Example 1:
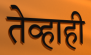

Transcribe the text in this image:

तेव्हाही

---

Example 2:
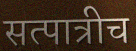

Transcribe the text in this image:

सत्पात्रीच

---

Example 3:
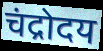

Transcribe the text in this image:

चंद्रोदय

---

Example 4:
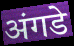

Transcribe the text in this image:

अंगडे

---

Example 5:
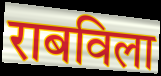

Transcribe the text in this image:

राबविला